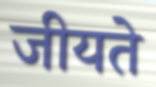
जीयते